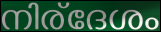
നിര്ദേശം